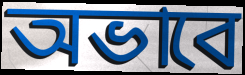
অভাবে